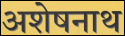
अशेषनाथ